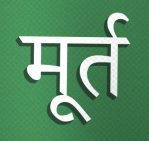
मूर्त